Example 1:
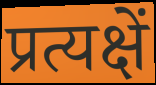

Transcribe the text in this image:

प्रत्यक्षें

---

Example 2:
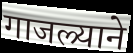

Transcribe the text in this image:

गाजल्याने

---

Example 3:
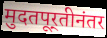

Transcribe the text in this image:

मुदतपूर्तीनंतर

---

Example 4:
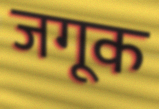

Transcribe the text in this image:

जगूक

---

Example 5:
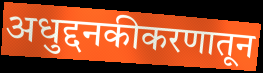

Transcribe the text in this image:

अधुद्दनकीकरणातून